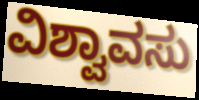
ವಿಶ್ವಾವಸು